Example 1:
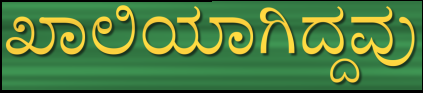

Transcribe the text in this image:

ಖಾಲಿಯಾಗಿದ್ದವು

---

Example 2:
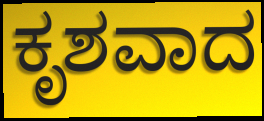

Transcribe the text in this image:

ಕೃಶವಾದ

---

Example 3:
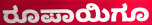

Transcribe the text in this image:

ರೂಪಾಯಿಗೂ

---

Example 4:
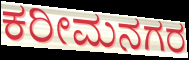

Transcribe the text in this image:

ಕರೀಮನಗರ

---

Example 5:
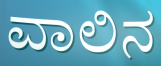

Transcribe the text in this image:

ವಾಲಿನ